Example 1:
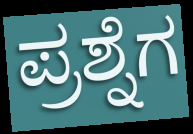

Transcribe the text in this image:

ಪ್ರಶ್ನೆಗ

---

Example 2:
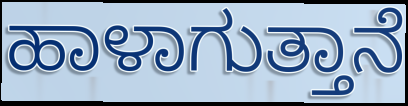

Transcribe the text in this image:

ಹಾಳಾಗುತ್ತಾನೆ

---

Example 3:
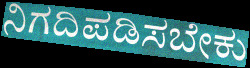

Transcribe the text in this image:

ನಿಗದಿಪಡಿಸಬೇಕು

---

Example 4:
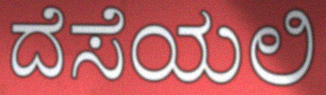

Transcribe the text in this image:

ದೆಸೆಯಲಿ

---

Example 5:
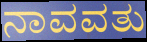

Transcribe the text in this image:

ನಾವವತು